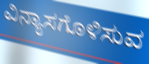
ವಿನ್ಯಾಸಗೊಳಿಸುವ